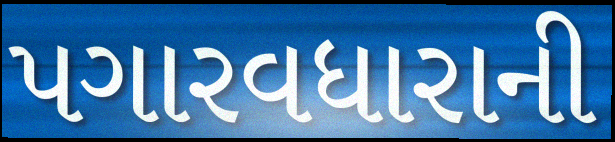
પગારવધારાની